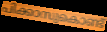
പിക്കാസുകൊണ്ട്